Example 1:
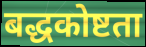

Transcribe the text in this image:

बद्धकोष्टता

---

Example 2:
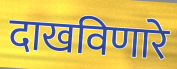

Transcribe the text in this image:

दाखविणारे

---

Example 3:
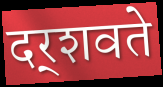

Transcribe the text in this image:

दर्शवते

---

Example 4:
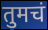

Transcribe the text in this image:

तुमचं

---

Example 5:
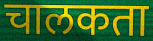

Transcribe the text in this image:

चालकता